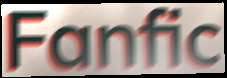
Fanfic